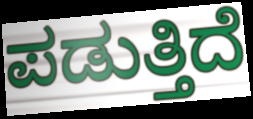
ಪಡುತ್ತಿದೆ